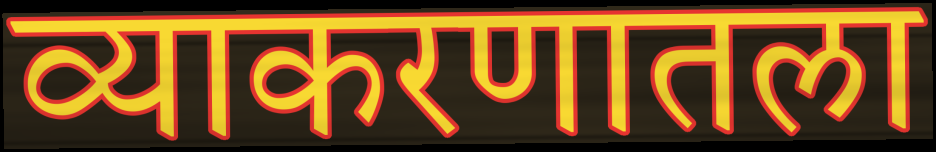
व्याकरणातला